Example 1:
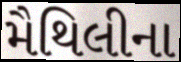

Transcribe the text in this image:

મૈથિલીના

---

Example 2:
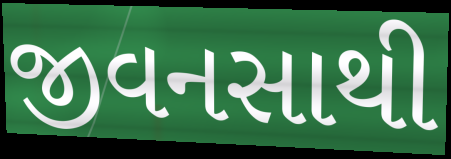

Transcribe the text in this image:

જીવનસાથી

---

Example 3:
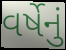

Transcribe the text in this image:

વર્ષેનું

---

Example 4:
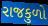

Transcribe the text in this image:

રાજકુળો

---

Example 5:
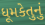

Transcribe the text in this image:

ધૂમકેતુનું